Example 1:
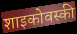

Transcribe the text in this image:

शाइकोवस्की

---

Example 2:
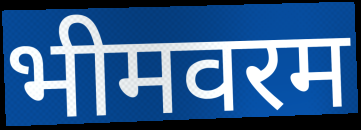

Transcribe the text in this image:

भीमवरम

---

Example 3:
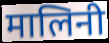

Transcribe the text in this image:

मालिनी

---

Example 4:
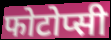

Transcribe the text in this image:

फोटोप्सी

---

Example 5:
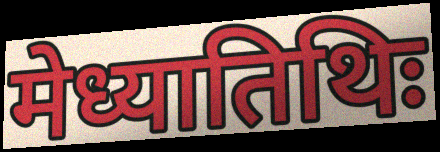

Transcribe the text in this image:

मेध्यातिथिः